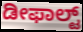
ಡೀಫಾಲ್ಟ್